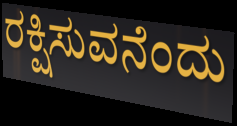
ರಕ್ಷಿಸುವನೆಂದು